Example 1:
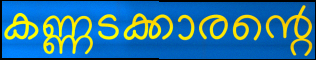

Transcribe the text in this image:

കണ്ണടക്കാരന്റെ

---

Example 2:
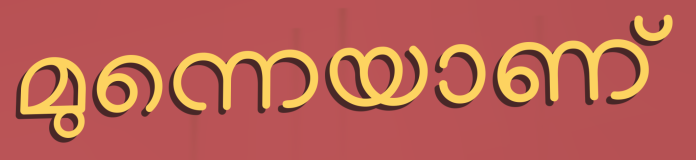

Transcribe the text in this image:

മുന്നെയാണ്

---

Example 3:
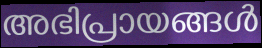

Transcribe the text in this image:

അഭിപ്രായങ്ങൾ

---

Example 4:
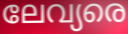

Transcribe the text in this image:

ലേവ്യരെ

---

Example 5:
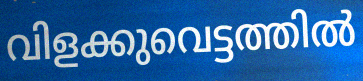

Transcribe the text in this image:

വിളക്കുവെട്ടത്തിൽ